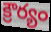
క్రౌర్యం